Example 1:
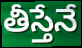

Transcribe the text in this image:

తీస్తేనే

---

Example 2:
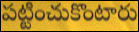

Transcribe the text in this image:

పట్టించుకొంటారు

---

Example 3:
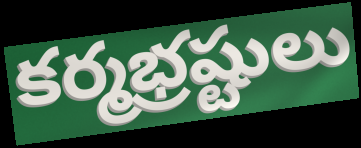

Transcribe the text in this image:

కర్మభ్రష్టులు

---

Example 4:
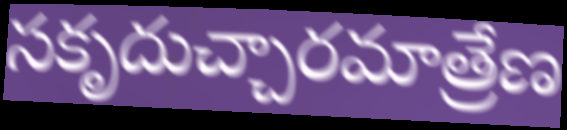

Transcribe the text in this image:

సకృదుచ్చారమాత్రేణ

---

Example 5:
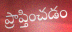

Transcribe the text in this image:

ప్రాప్తించడం